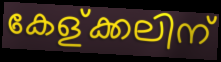
കേള്ക്കലിന്